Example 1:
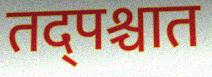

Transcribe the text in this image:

तद्पश्चात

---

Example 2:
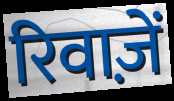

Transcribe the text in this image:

रिवाज़ें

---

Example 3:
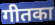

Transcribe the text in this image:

गीतका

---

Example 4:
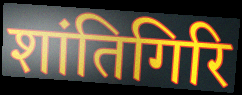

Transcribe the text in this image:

शांतिगिरि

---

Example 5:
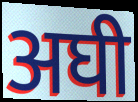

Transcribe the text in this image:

अघी